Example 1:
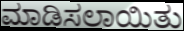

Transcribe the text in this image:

ಮಾಡಿಸಲಾಯಿತು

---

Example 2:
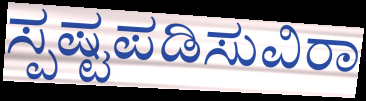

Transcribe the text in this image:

ಸ್ಪಷ್ಟಪಡಿಸುವಿರಾ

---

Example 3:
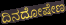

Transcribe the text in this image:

ದಿನದೋಷೇಣ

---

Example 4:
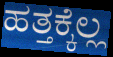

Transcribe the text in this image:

ಹತ್ತಕ್ಕೆಲ್ಲ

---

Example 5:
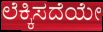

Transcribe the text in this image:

ಲೆಕ್ಕಿಸದೆಯೇ